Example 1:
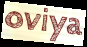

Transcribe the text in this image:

oviya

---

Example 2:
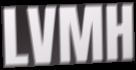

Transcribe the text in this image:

LVMH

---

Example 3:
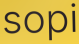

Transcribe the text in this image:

sopi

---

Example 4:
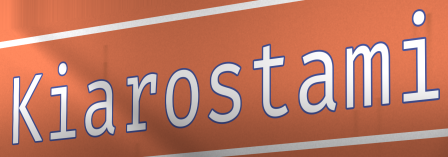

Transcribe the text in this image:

Kiarostami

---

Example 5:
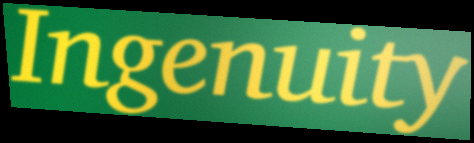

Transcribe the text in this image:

Ingenuity